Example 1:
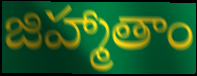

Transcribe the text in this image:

జిహ్మాతాం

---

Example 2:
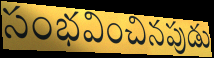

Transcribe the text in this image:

సంభవించినపుడు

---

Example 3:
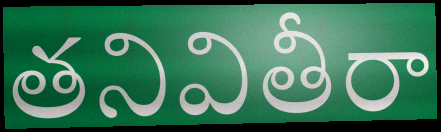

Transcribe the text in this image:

తనివితీరా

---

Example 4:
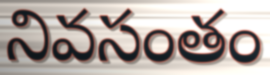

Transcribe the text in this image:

నివసంతం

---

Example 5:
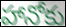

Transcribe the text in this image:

హానోకు